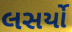
લસર્યો